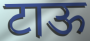
टाऊ